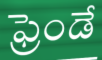
ఫ్రెండే